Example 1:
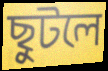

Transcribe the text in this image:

ছুটলে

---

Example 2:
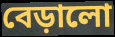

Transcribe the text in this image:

বেড়ালো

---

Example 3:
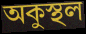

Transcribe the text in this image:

অকুস্থল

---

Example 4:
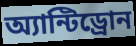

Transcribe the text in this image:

অ্যান্টিড্রোন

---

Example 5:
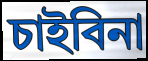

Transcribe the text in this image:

চাইবিনা